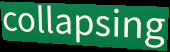
collapsing